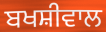
ਬਖਸ਼ੀਵਾਲ